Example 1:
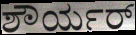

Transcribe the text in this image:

ಶೌರ್ಯರ್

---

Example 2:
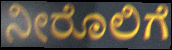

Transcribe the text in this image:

ನೀರೊಲಿಗೆ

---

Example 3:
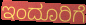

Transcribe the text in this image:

ಇಂದೂರಿಗೆ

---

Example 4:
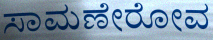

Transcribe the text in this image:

ಸಾಮಣೇರೋವ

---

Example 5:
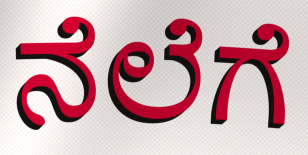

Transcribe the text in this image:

ನೆಲೆಗೆ